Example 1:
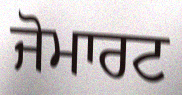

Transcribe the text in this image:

ਜੋਮਾਰਟ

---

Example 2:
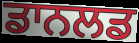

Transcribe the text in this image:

ਡਾਨਲਡ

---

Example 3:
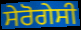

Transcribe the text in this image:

ਸੇਰੋਗੇਸੀ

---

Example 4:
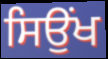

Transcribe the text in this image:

ਸਿਉਂਖ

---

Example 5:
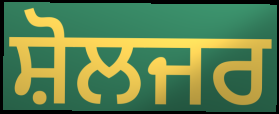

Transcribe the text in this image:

ਸ਼ੋਲਜਰ